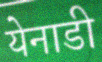
येनाडी